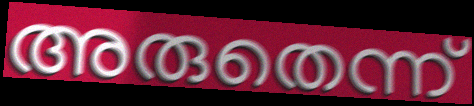
അരുതെന്ന്